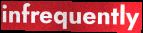
infrequently